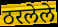
ठरलेले